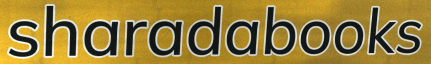
sharadabooks